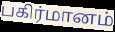
பகிர்மானம்